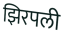
झिरपली